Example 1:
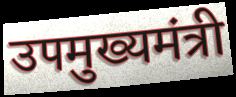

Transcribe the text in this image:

उपमुख्यमंत्री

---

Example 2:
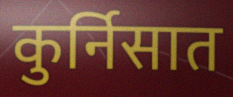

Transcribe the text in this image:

कुर्निसात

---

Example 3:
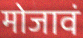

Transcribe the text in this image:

मोजावं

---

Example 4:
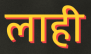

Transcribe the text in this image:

लाही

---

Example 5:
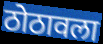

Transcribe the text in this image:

ठोठावला